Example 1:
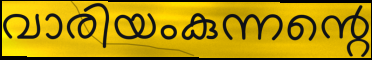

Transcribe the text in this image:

വാരിയംകുന്നന്റെ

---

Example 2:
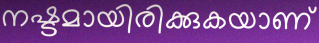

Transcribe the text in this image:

നഷ്ടമായിരിക്കുകയാണ്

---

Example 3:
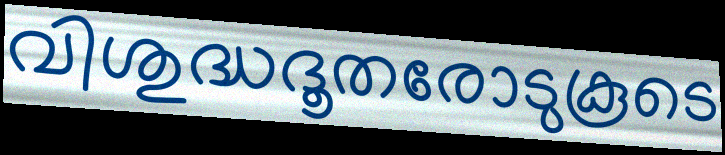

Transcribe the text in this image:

വിശുദ്ധദൂതരോടുകൂടെ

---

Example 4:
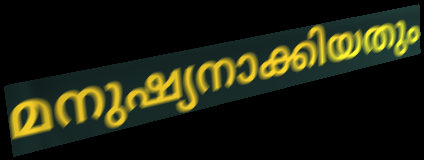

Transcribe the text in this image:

മനുഷ്യനാക്കിയതും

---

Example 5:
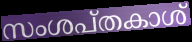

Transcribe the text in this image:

സംശപ്തകാശ്